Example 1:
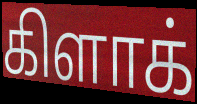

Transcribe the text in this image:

கிளாக்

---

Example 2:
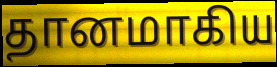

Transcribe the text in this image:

தானமாகிய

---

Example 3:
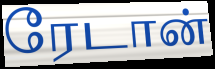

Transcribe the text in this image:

ரேடான்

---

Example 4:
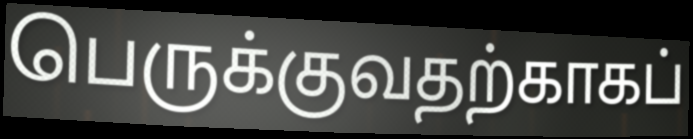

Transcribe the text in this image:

பெருக்குவதற்காகப்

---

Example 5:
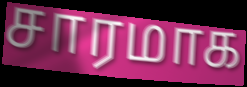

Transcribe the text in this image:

சாரமாக